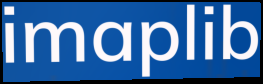
imaplib